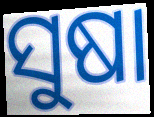
ସୁଷା